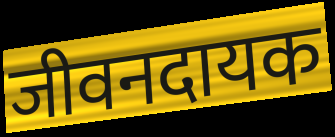
जीवनदायक